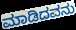
ಮಾಡಿದವನು